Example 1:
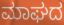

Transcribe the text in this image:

ಮಾಘದ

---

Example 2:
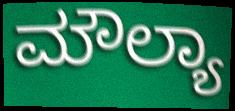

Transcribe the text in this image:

ಮೌಲ್ಯಾ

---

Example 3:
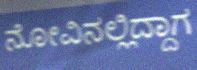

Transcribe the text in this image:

ನೋವಿನಲ್ಲಿದ್ದಾಗ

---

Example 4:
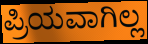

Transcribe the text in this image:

ಪ್ರಿಯವಾಗಿಲ್ಲ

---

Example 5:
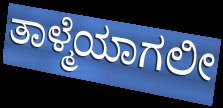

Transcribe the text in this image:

ತಾಳ್ಮೆಯಾಗಲೀ